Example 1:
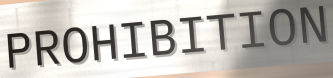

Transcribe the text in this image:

PROHIBITION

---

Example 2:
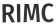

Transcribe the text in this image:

RIMC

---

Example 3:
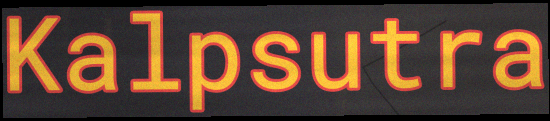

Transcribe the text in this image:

Kalpsutra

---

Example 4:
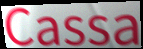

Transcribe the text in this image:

Cassa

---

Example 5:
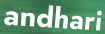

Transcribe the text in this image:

andhari